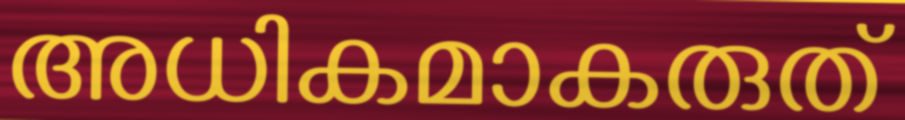
അധികമാകരുത്